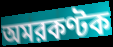
অমরকণ্টক